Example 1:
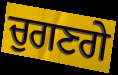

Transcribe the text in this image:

ਚੁਗਣਗੇ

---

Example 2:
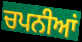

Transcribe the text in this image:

ਚਪਨੀਆਂ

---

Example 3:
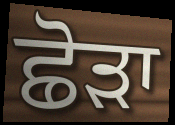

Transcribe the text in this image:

ਛੋੜਾ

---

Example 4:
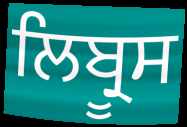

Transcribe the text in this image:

ਲਿਬ੍ਰੂਸ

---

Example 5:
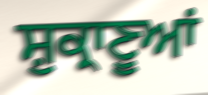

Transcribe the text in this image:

ਸ਼ੁਕ੍ਰਾਣੂਆਂ